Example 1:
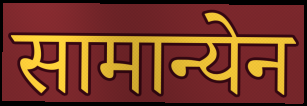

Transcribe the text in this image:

सामान्येन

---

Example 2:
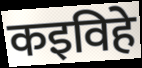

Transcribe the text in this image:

कइविहे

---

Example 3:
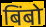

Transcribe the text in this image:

बिंबो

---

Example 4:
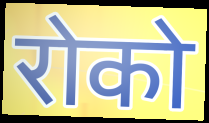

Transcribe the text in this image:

रोको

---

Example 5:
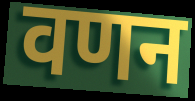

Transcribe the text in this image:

वणन